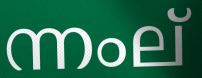
ന്നംല്